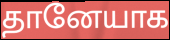
தானேயாக